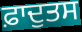
ਫ਼ਾਦੁਤਸ